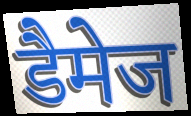
डैमेज